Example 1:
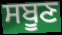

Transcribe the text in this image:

ਸਬੂਣ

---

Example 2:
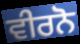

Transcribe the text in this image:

ਵੀਰਨੋ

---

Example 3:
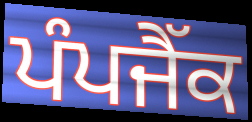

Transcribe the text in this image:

ਪੰਪਜੈੱਕ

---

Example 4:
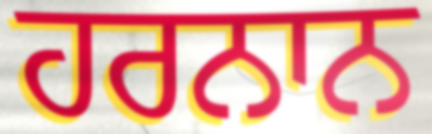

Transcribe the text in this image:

ਹਰਨਾਨ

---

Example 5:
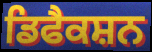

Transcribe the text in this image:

ਡਿਫੈਕਸ਼ਨ